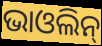
ଭାଓଲିନ୍